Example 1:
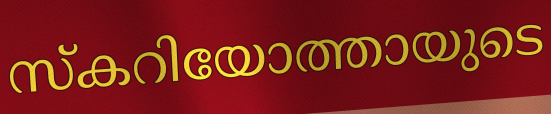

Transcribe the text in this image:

സ്കറിയോത്തായുടെ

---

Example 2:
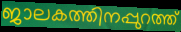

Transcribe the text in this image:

ജാലകത്തിനപ്പുറത്ത്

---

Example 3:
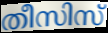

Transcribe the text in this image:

തീസിസ്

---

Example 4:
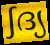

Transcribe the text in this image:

ഽദ്യ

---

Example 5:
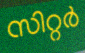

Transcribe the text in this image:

സിറ്റർ